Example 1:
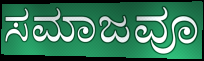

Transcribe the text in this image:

ಸಮಾಜವೂ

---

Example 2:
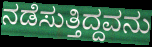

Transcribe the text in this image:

ನಡೆಸುತ್ತಿದ್ದವನು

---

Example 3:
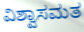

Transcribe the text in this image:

ವಿಶ್ವಾಸಮತ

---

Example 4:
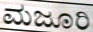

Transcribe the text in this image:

ಮಜೂರಿ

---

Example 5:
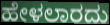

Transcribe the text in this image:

ಹೇಳಲಾರದು